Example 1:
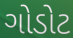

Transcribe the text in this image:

ગોડોટ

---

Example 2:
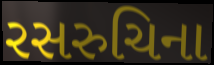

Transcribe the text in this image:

રસરુચિના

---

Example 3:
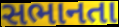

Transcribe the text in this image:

સભાનતા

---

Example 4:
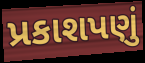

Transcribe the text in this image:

પ્રકાશપણું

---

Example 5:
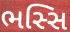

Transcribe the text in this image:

ભસ્સિ